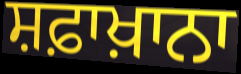
ਸ਼ਫ਼ਾਖ਼ਾਨਾ